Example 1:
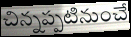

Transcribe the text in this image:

చిన్నప్పటినుంచే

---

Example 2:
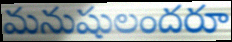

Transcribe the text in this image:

మనుషులందరూ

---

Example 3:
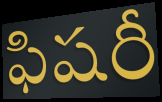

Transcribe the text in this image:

ఫిషరీ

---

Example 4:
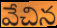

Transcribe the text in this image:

వేచిన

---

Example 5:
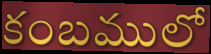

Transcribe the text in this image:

కంబములో